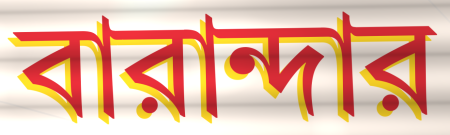
বারান্দার